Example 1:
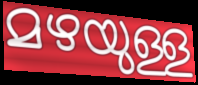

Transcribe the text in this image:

മഴയുള്ള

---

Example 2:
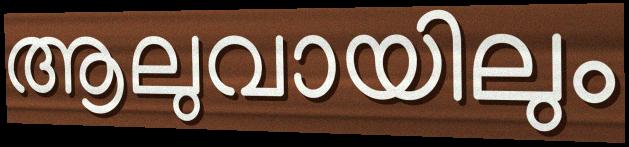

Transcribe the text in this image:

ആലുവായിലും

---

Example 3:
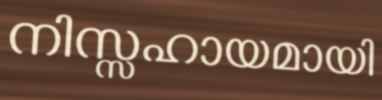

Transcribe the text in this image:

നിസ്സഹായമായി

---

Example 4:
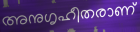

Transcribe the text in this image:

അനുഗൃഹീതരാണ്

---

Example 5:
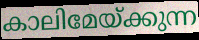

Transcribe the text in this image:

കാലിമേയ്ക്കുന്ന